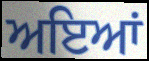
ਅਇਆਂ